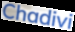
Chadivi